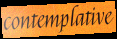
contemplative